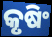
କୃଷିଂ